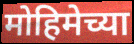
मोहिमेच्या